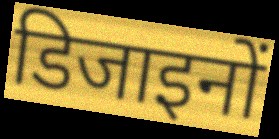
डिजाइनों